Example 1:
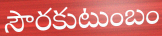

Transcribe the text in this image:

సౌరకుటుంబం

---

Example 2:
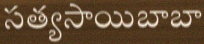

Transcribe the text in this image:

సత్యసాయిబాబా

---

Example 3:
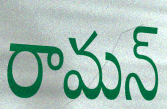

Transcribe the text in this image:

రామన్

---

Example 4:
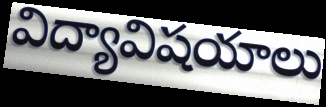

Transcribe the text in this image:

విద్యావిషయాలు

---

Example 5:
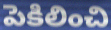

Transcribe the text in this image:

పెకిలించి